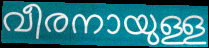
വീരനായുള്ള